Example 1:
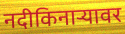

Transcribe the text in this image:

नदीकिनाऱ्यावर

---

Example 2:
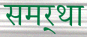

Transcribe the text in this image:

समर्था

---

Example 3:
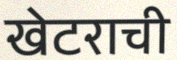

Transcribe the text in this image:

खेटराची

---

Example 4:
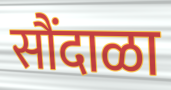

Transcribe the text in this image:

सौंदाळा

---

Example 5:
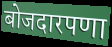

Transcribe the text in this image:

बोजदारपणा